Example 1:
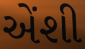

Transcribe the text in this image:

એંશી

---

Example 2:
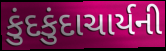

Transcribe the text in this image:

કુંદકુંદાચાર્યની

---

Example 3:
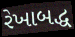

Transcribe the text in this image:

રેખાબદ્ધ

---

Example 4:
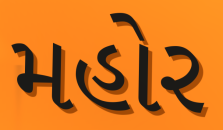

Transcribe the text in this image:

મહોર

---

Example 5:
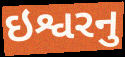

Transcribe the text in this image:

ઇશ્વરનુ